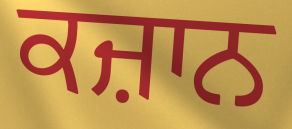
ਕਜ਼ਾਨ